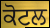
ਕੋਟਲ